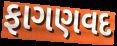
ફાગણવદ